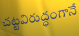
చట్టవిరుద్ధంగానే